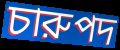
চারুপদ